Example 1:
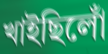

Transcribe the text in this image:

খাইছিলোঁ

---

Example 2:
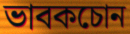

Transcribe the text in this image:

ভাবকচোন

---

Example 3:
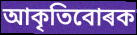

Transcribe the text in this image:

আকৃতিবোৰক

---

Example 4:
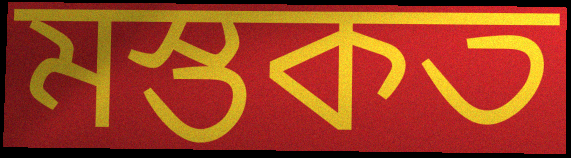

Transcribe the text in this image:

মস্তকত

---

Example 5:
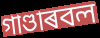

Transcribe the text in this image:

গাণ্ডাৰবল